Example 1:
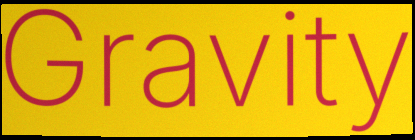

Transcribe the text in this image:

Gravity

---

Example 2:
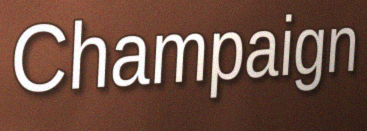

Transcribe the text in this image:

Champaign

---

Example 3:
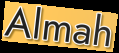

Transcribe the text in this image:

Almah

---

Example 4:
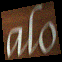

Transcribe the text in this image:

alo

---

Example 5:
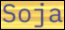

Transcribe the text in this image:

Soja